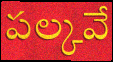
పల్కవే